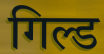
गिल्ड